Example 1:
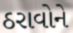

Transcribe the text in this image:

ઠરાવોને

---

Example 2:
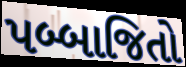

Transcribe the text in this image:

પબ્બાજિતો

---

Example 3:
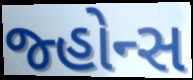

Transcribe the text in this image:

જ્હોન્સ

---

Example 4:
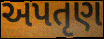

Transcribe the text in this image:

અપતૃણ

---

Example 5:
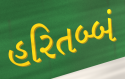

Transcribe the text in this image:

હરિતબ્બં